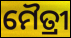
ମୈତ୍ରୀ